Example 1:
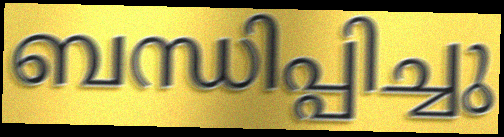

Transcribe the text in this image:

ബന്ധിപ്പിച്ചു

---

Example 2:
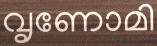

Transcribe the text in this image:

വൃണോമി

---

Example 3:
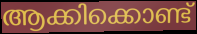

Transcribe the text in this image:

ആക്കിക്കൊണ്ട്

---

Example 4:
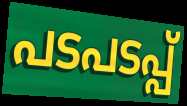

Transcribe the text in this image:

പടപടപ്പ്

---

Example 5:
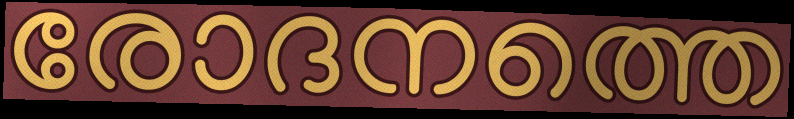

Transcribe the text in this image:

രോദനത്തെ